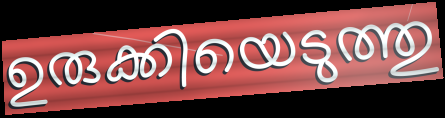
ഉരുക്കിയെടുത്തു